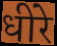
धीरे